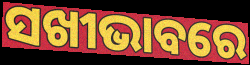
ସଖୀଭାବରେ